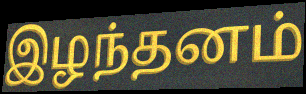
இழந்தனம்